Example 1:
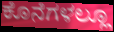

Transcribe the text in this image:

ಕೊನೆಗಳಲ್ಲೂ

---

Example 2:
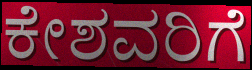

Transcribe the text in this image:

ಕೇಶವರಿಗೆ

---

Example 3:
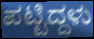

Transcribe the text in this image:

ಪಟ್ಟಿದ್ದಳು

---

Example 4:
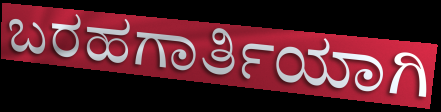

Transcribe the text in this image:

ಬರಹಗಾರ್ತಿಯಾಗಿ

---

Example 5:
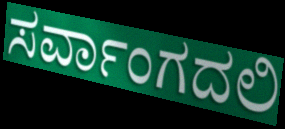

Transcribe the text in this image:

ಸರ್ವಾಂಗದಲಿ